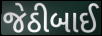
જેઠીબાઈ